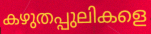
കഴുതപ്പുലികളെ